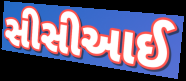
સીસીઆઈ